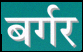
बर्गर